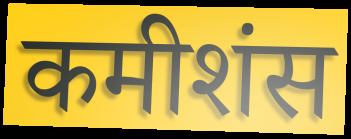
कमीशंस